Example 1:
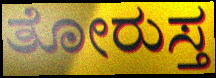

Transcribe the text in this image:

ತೋರುಸ್ತ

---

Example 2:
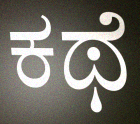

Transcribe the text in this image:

ಕಥೆ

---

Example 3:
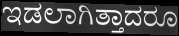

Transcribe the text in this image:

ಇಡಲಾಗಿತ್ತಾದರೂ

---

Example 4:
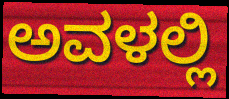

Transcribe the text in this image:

ಅವಳಲ್ಲಿ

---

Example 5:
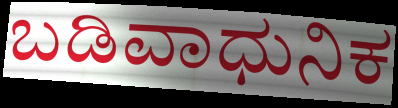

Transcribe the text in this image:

ಬಡಿವಾಧುನಿಕ